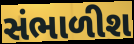
સંભાળીશ